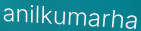
anilkumarha